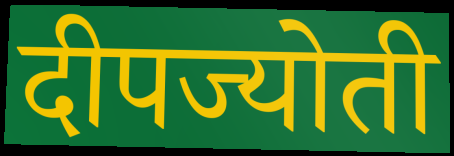
दीपज्योती